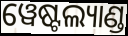
ୱେଷ୍ଟଲ୍ୟାଣ୍ଡ